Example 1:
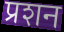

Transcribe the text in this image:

प्रशन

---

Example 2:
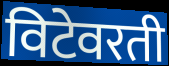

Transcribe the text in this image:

विटेवरती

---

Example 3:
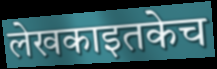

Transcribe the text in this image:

लेखकाइतकेच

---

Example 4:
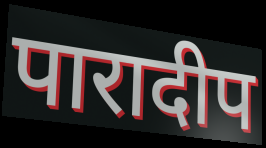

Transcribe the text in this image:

पारादीप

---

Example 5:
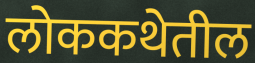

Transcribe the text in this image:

लोककथेतील